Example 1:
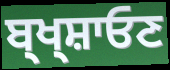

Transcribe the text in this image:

ਬ੍ਖ੍ਸ਼ਾਓਣ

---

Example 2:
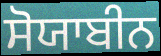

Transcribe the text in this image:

ਸੋਯਾਬੀਨ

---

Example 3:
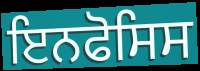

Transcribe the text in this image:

ਇਨਫੋਸਿਸ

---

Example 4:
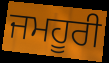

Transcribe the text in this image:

ਜਮਹੂਰੀ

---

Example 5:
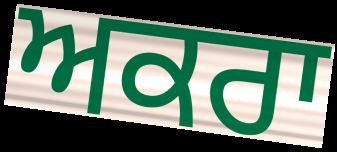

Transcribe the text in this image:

ਅਕਰਾ